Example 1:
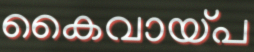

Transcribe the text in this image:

കൈവായ്പ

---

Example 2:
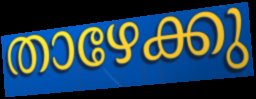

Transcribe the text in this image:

താഴേക്കു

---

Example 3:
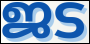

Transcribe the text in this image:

ജട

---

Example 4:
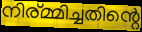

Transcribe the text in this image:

നിര്മ്മിച്ചതിന്റെ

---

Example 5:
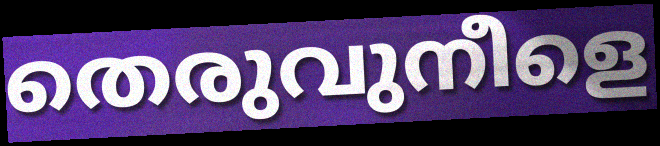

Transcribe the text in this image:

തെരുവുനീളെ